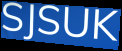
SJSUK